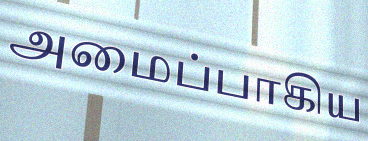
அமைப்பாகிய